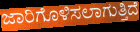
ಜಾರಿಗೊಳಿಸಲಾಗುತ್ತಿದೆ